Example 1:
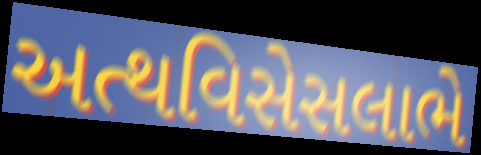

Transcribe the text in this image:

અત્થવિસેસલાભે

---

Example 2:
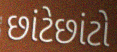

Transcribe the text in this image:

છાંટેછાંટો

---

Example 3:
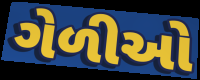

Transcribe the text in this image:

ગેળીઓ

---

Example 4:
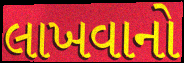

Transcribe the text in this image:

લાખવાનો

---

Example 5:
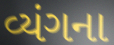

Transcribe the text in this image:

વ્યંગના